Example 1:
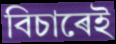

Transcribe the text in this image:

বিচাৰেই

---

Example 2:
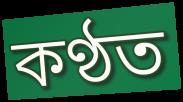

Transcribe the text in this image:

কণ্ঠত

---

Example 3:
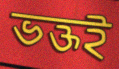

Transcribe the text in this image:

ভক্তই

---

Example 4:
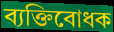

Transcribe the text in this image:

ব্যক্তিবোধক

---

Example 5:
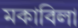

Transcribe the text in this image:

মকাবিলা